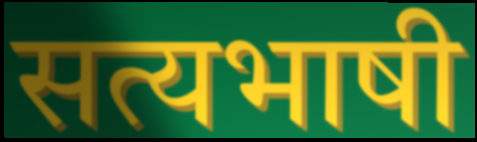
सत्यभाषी